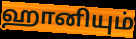
ஹானியும்